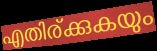
എതിര്ക്കുകയും